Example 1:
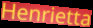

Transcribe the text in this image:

Henrietta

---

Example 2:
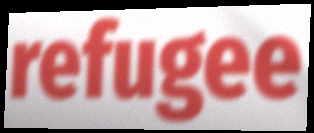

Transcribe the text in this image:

refugee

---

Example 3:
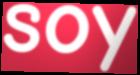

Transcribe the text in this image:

soy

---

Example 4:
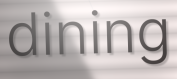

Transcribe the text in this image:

dining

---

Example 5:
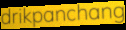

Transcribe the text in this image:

drikpanchang